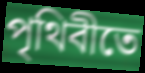
পৃথিবীতে